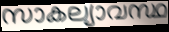
സാകല്യാവസ്ഥ